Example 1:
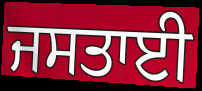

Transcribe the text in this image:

ਜਸਤਾਈ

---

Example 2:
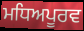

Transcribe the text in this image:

ਮਧਿਅਪੂਰਵ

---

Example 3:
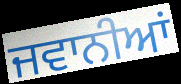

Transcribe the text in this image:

ਜਵਾਨੀਆਂ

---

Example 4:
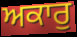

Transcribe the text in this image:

ਅਕਾਰੁ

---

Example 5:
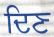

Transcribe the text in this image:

ਦਿਣ